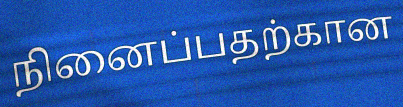
நினைப்பதற்கான